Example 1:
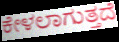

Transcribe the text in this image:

ಕೇಳಲಾಗುತ್ತದೆ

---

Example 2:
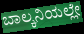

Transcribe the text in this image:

ಬಾಲ್ಕನಿಯಲ್ಲೇ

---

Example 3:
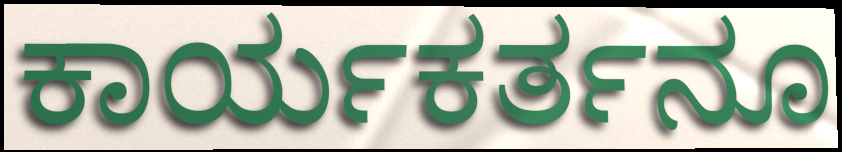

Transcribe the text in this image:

ಕಾರ್ಯಕರ್ತನೂ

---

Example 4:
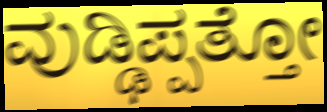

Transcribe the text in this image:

ವುಡ್ಢಿಪ್ಪತ್ತೋ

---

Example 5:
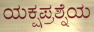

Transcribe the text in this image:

ಯಕ್ಷಪ್ರಶ್ನೆಯ